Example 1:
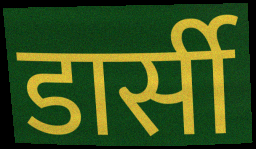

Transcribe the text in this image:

डार्सी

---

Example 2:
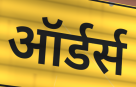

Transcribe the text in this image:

ऑर्डर्स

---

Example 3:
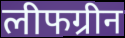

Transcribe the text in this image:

लीफग्रीन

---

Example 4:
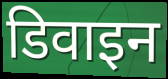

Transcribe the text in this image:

डिवाइन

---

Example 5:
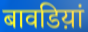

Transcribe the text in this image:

बावडिय़ां